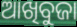
ଆଖିବୁଜା